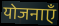
योजनाएँ